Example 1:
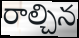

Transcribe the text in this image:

రాల్చిన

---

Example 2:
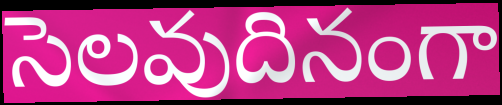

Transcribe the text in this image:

సెలవుదినంగా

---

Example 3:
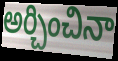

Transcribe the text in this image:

అర్చించినా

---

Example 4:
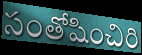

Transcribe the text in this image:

సంతోషించిరి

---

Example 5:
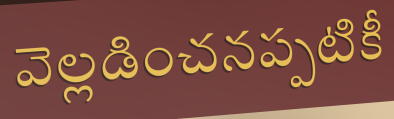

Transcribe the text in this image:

వెల్లడించనప్పటికీ